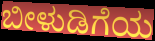
ಬೀಳುಡಿಗೆಯ